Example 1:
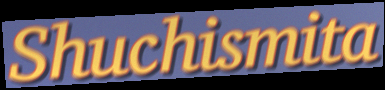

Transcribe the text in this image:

Shuchismita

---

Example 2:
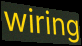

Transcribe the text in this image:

wiring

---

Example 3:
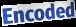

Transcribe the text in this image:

Encoded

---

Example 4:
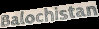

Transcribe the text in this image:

Balochistan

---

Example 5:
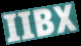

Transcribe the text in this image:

IIBX